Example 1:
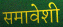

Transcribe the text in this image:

समावेशी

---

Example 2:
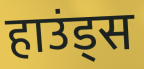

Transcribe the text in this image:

हाउंड्स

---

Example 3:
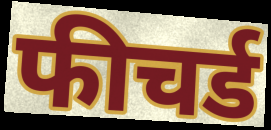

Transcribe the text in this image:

फीचर्ड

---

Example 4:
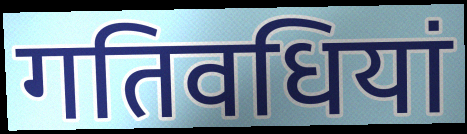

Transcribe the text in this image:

गतिवधियां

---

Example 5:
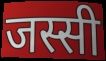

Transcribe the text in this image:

जस्सी